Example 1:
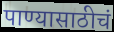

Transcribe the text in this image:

पाण्यासाठीचं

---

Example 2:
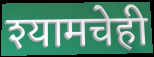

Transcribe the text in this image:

श्यामचेही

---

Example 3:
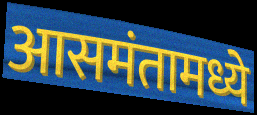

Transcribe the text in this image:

आसमंतामध्ये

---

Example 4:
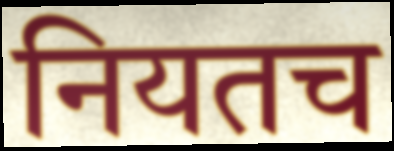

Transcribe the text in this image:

नियतच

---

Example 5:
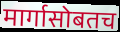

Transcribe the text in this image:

मार्गासोबतच